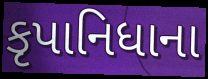
કૃપાનિધાના